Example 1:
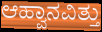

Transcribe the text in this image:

ಆಹ್ವಾನವಿತ್ತು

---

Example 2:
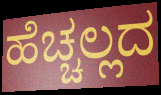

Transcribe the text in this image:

ಹೆಚ್ಚಲ್ಲದ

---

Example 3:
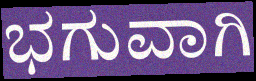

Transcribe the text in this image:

ಭಗುವಾಗಿ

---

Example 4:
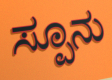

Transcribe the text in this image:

ಸ್ಪೂನು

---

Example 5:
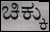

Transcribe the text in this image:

ಚಿಕ್ಕು